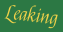
Leaking